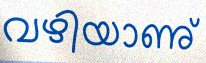
വഴിയാണു്